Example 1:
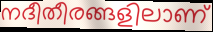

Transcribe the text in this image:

നദീതീരങ്ങളിലാണ്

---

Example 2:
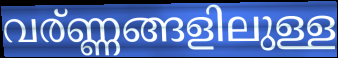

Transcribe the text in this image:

വര്ണ്ണങ്ങളിലുള്ള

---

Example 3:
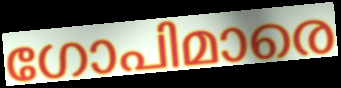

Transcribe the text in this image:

ഗോപിമാരെ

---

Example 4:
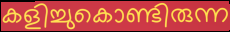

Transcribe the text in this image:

കളിച്ചുകൊണ്ടിരുന്ന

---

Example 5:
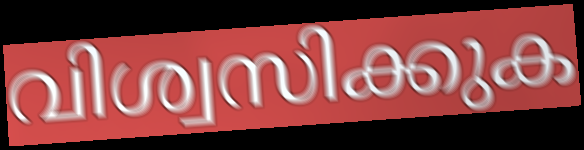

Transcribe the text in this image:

വിശ്വസിക്കുക